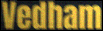
Vedham